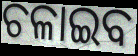
ଚଳାଇବ